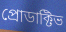
প্রোডাক্টিভ